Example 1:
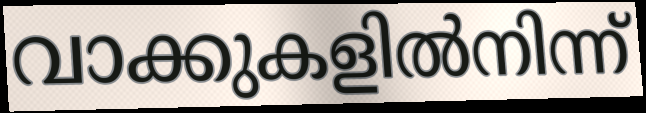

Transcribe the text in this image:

വാക്കുകളിൽനിന്ന്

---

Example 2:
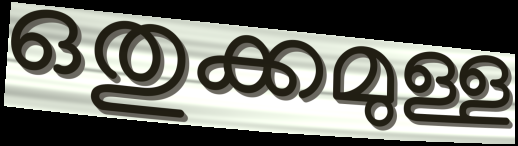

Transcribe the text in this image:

ഒതുക്കമുള്ള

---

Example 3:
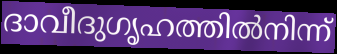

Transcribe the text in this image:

ദാവീദുഗൃഹത്തിൽനിന്ന്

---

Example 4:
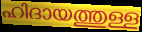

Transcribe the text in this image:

ഹിദായത്തുള്ള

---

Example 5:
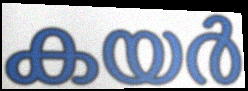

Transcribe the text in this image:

കയർ